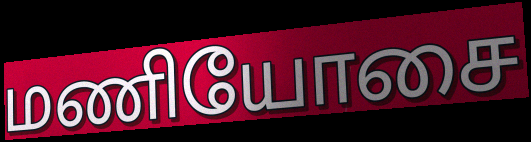
மணியோசை